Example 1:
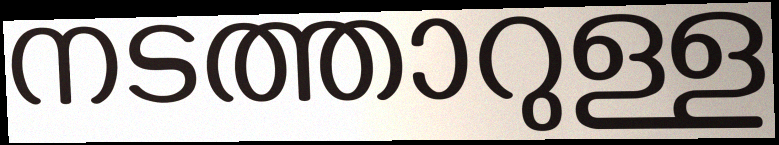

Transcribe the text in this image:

നടത്താറുള്ള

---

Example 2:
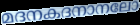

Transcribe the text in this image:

മദനകദനാനലോ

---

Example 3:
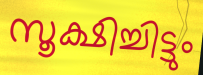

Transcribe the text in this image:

സൂക്ഷിച്ചിട്ടും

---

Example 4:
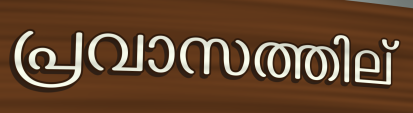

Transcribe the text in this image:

പ്രവാസത്തില്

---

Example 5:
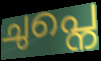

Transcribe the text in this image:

ചുപ്നെ